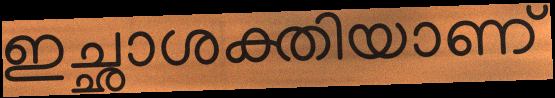
ഇച്ഛാശക്തിയാണ്